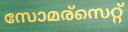
സോമര്സെറ്റ്